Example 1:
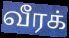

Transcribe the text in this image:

வீரக்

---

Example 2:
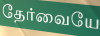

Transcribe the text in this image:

தேர்வையே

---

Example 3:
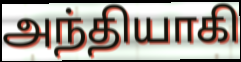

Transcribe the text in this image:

அந்தியாகி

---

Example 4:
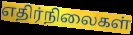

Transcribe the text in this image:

எதிர்நிலைகள்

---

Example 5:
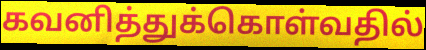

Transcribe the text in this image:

கவனித்துக்கொள்வதில்